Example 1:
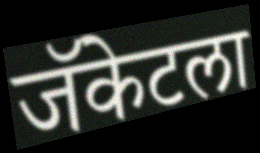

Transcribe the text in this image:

जॅकेटला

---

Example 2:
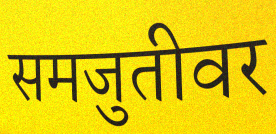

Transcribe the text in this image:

समजुतीवर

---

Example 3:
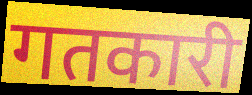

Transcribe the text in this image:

गतकारी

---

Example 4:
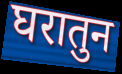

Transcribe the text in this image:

घरातुन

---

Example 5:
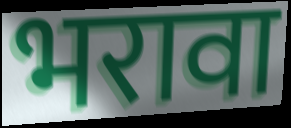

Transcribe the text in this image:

भरावा